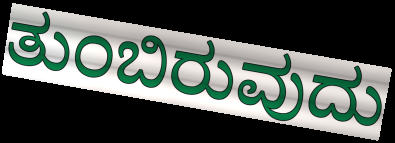
ತುಂಬಿರುವುದು